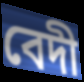
বেদী